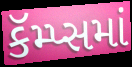
કૅમ્પ્સમાં